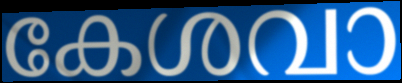
കേശവാ